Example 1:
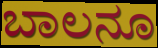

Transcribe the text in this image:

ಬಾಲನೂ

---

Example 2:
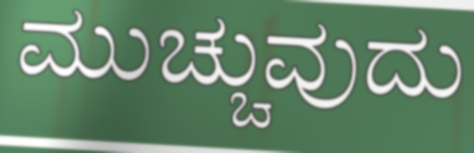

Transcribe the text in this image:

ಮುಚ್ಚುವುದು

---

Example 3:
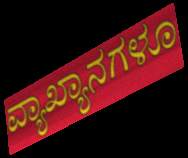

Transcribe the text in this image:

ವ್ಯಾಖ್ಯಾನಗಳೂ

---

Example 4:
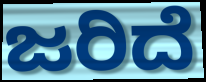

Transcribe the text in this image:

ಜರಿದೆ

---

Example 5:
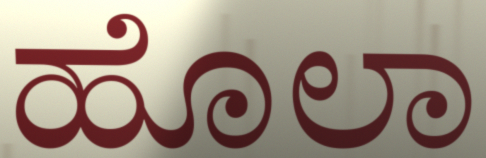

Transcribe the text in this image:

ಹೊಲಾ